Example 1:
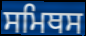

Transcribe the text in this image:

ਸਮਿਥਸ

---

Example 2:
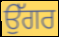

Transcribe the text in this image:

ਉੱਗਰ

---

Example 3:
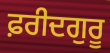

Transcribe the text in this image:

ਫ਼ਰੀਦਗੁਰੂ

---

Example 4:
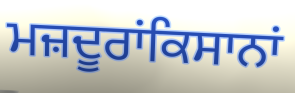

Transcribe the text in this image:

ਮਜ਼ਦੂਰਾਂਕਿਸਾਨਾਂ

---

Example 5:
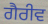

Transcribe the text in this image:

ਗੈਰੀਵ